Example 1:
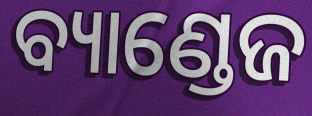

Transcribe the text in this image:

ବ୍ୟାଣ୍ଡେଜ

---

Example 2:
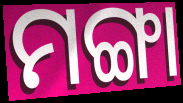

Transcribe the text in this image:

ମଙ୍ଗା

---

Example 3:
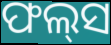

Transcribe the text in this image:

ଫଲ୍‍ସ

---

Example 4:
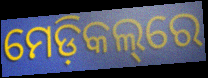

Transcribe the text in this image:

ମେଡ଼ିକଲ୍‌ରେ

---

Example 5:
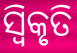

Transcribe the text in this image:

ସ୍ୱିକୃତି